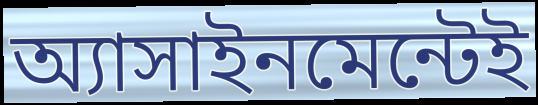
অ্যাসাইনমেন্টেই